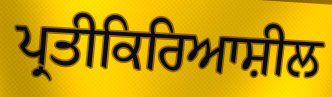
ਪ੍ਰਤੀਕਿਰਿਆਸ਼ੀਲ